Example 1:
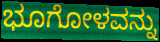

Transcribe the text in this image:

ಭೂಗೋಳವನ್ನು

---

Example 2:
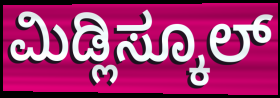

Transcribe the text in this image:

ಮಿಡ್ಲಿಸ್ಕೂಲ್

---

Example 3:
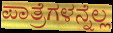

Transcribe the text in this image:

ಪಾತ್ರೆಗಳನ್ನೆಲ್ಲ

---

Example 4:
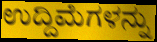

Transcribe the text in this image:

ಉದ್ದಿಮೆಗಳನ್ನು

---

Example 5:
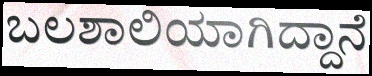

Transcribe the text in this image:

ಬಲಶಾಲಿಯಾಗಿದ್ದಾನೆ